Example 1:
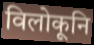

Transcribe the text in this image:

विलोकूनि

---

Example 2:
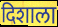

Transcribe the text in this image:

दिशाला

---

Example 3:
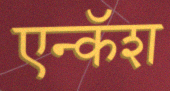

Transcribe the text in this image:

एन्कॅश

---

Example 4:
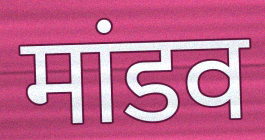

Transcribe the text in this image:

मांडव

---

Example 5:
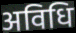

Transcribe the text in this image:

अविधि